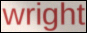
wright